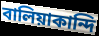
বালিয়াকান্দি